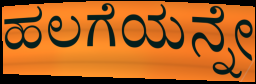
ಹಲಗೆಯನ್ನೇ